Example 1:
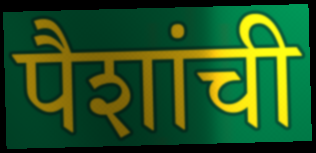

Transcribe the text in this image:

पैशांची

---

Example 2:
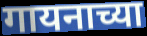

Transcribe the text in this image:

गायनाच्या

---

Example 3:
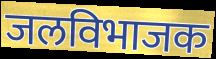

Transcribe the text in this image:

जलविभाजक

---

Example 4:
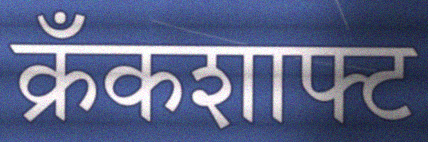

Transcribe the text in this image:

क्रँकशाफ्ट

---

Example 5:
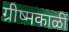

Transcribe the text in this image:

ग्रीष्मकाळीं